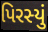
પિરસ્યું